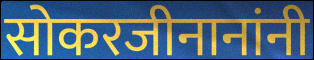
सोकरजीनानांनी